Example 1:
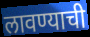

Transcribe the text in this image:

लावण्याची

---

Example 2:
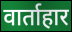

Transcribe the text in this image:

वार्ताहार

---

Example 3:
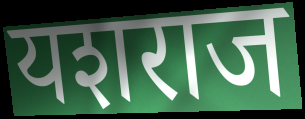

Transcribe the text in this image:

यशराज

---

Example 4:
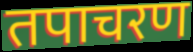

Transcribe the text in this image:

तपाचरण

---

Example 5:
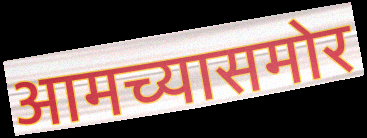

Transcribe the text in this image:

आमच्यासमोर